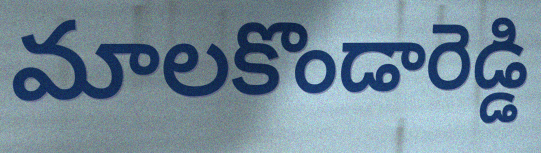
మాలకొండారెడ్డి